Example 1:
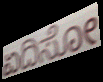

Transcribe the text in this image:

ಏದಿಸೋ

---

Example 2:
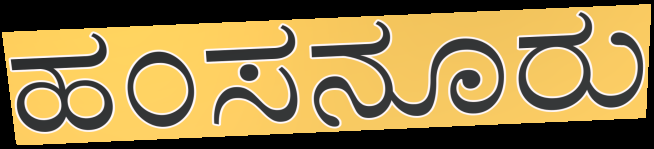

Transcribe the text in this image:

ಹಂಸನೂರು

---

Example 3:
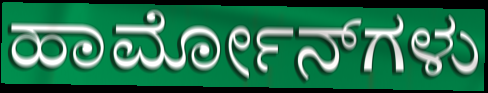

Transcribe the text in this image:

ಹಾರ್ಮೋನ್‌ಗಳು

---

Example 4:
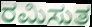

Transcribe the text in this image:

ರಮಿಸುತ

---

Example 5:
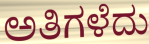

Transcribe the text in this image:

ಅತಿಗಳೆದು